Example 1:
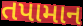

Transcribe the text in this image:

તપામાન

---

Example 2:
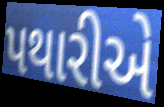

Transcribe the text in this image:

પથારીએ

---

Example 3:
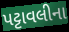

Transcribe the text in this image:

પટ્ટાવલીના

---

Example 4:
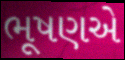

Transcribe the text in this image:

ભૂષણએ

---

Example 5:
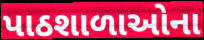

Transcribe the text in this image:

પાઠશાળાઓના